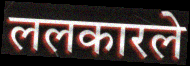
ललकारले